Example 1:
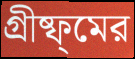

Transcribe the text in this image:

গ্রীষ্ফ্মের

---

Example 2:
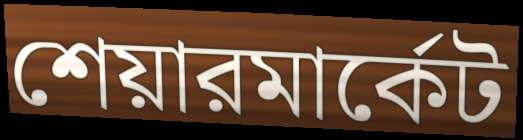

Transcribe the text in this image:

শেয়ারমার্কেট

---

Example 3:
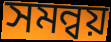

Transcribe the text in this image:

সমন্বয়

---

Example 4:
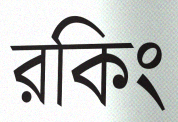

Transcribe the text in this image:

রকিং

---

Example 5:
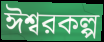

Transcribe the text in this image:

ঈশ্বরকল্প